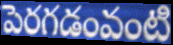
పెరగడంవంటి